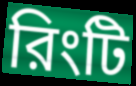
রিংটি